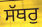
ਸੱਥਰੁ